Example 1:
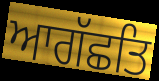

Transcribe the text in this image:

ਆਗੱਛਤਿ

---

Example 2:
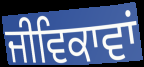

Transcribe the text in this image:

ਜੀਵਿਕਾਵਾਂ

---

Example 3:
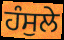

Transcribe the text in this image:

ਹੰਸੁਲੇ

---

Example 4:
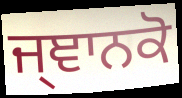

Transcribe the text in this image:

ਜ੍ਞਾਨਕੋ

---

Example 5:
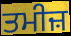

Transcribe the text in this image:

ਤਮੀਜ਼